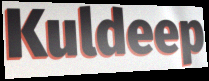
Kuldeep